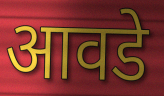
आवडे